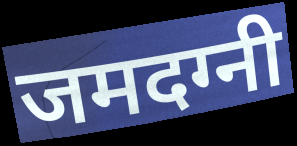
जमदग्नी